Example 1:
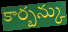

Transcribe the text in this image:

కార్బన్కు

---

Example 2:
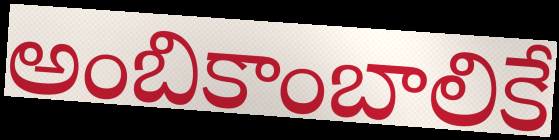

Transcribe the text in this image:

అంబికాంబాలికే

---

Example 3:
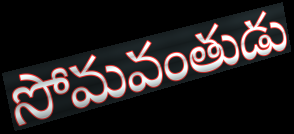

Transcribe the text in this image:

సోమవంతుడు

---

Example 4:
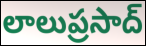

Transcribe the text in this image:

లాలుప్రసాద్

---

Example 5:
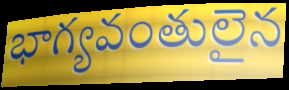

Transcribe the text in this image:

భాగ్యవంతులైన